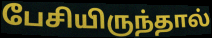
பேசியிருந்தால்